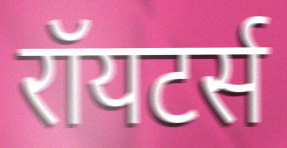
रॉयटर्स